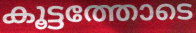
കൂട്ടത്തോടെ